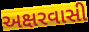
અક્ષરવાસી